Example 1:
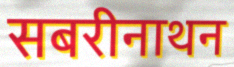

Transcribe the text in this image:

सबरीनाथन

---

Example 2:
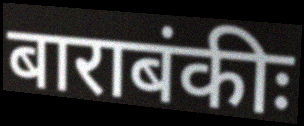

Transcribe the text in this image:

बाराबंकीः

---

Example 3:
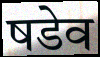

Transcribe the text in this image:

षडेव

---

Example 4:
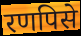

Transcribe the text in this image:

रणपिसे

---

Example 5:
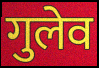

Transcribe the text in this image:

गुलेव